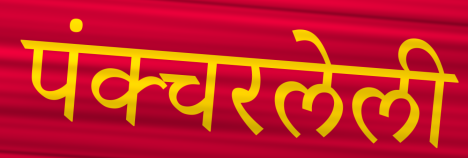
पंक्चरलेली